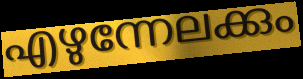
എഴുന്നേലക്കും